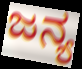
ಜನ್ಯ